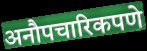
अनौपचारिकपणे